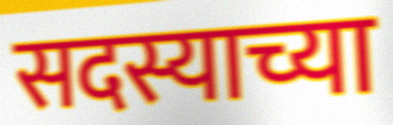
सदस्याच्या